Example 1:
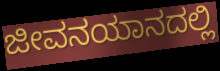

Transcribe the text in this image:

ಜೀವನಯಾನದಲ್ಲಿ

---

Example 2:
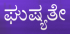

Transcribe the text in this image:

ಘುಷ್ಯತೇ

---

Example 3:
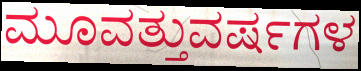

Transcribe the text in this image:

ಮೂವತ್ತುವರ್ಷಗಳ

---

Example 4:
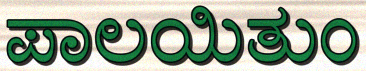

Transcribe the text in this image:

ಪಾಲಯಿತುಂ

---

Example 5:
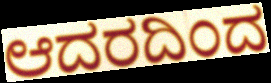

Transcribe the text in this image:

ಆದರದಿಂದ